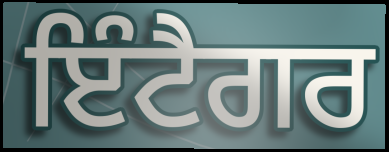
ਇੰਟੈਗਰ